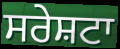
ਸਰੇਸ਼ਟਾ